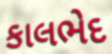
કાલભેદ